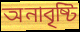
অনাবৃষ্টি